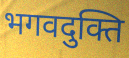
भगवदुक्ति